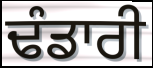
ਢੰਡਾਰੀ